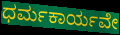
ಧರ್ಮಕಾರ್ಯವೇ